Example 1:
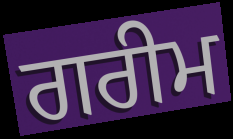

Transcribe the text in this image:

ਗਰੀਮ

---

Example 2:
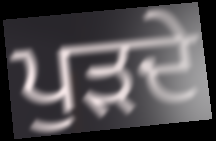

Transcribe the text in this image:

ਪੁੜਦੇ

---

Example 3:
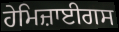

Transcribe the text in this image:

ਹੇਮਿਜ਼ਾਈਗਸ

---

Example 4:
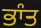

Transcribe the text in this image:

ਭਾੰਤ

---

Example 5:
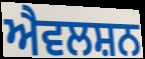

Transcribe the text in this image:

ਐਵਲਸ਼ਨ